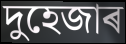
দুহেজাৰ